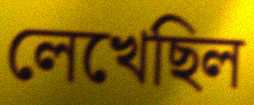
লেখেছিল